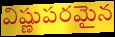
విష్ణుపరమైన